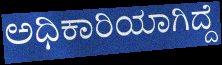
ಅಧಿಕಾರಿಯಾಗಿದ್ದೆ